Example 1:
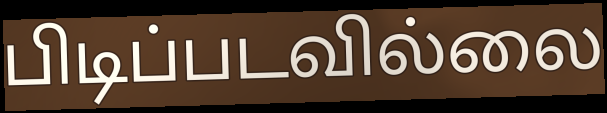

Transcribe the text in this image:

பிடிப்படவில்லை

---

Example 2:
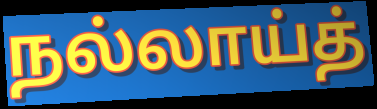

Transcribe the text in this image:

நல்லாய்த்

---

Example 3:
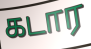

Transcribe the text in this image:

கடார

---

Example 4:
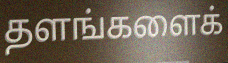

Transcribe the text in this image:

தளங்களைக்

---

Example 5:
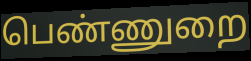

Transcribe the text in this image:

பெண்ணுறை